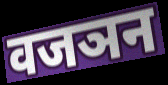
वजञन